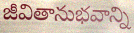
జీవితానుభవాన్ని